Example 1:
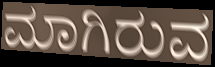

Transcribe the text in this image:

ಮಾಗಿರುವ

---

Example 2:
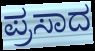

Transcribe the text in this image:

ಪ್ರಸಾದ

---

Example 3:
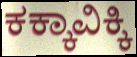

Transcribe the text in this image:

ಕಕ್ಕಾವಿಕ್ಕಿ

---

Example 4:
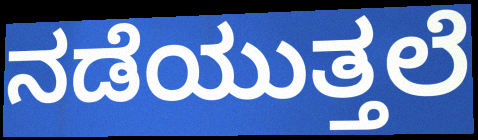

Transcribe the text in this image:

ನಡೆಯುತ್ತಲೆ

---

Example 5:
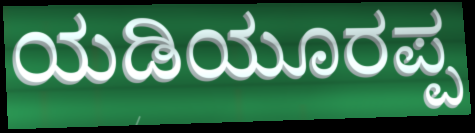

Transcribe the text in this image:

ಯಡಿಯೂರಪ್ಪ